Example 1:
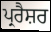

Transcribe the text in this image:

ਪ੍ਰਰੈਸ਼ਰ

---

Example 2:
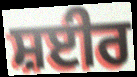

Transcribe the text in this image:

ਸ਼ਈਰ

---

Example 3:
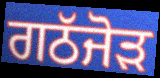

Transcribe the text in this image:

ਗਠੱਜੋੜ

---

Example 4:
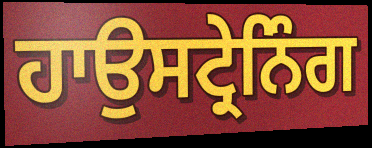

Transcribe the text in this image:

ਹਾਉਸਟ੍ਰੇਨਿੰਗ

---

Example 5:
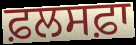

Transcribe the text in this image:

ਫ਼ਲਸਫ਼ਾ